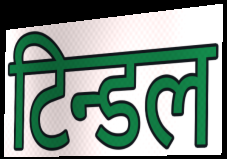
टिन्डल